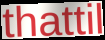
thattil